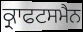
ਕ੍ਰਾਫਟਸਮੈਨ